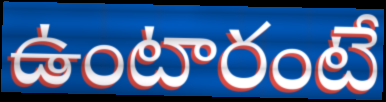
ఉంటారంటే